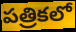
పత్రికలో